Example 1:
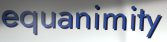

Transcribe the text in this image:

equanimity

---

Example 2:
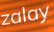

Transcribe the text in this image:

zalay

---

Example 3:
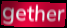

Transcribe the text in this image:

gether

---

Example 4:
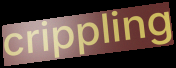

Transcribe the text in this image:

crippling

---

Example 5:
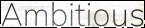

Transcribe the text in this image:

Ambitious